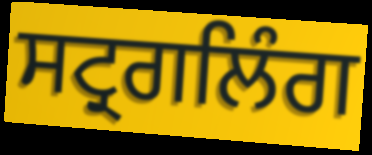
ਸਟ੍ਰਗਲਿੰਗ